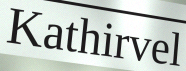
Kathirvel